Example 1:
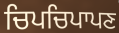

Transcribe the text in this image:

ਚਿਪਚਿਪਾਪਣ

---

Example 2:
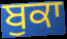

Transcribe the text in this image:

ਬੁਕਾ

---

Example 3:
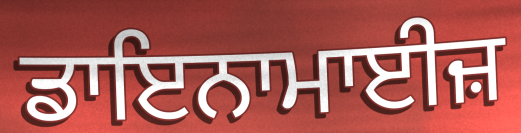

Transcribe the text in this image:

ਡਾਇਨਾਮਾਈਜ਼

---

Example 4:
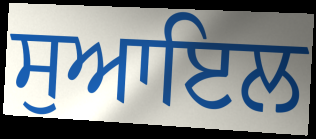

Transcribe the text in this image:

ਸੁਆਇਲ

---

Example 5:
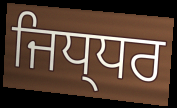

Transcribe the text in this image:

ਜਿਧ੍ਧਰ